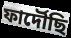
ফাৰ্দৌছি